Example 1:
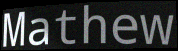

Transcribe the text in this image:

Mathew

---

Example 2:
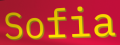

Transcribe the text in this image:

Sofia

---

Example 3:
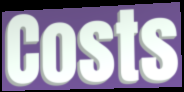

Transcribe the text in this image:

Costs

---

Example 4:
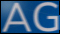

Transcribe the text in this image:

AG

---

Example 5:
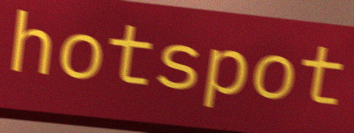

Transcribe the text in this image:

hotspot